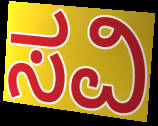
ಸವಿ